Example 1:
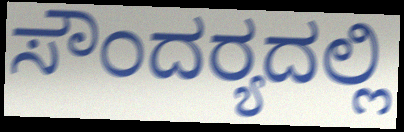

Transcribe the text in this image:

ಸೌಂದರ‍್ಯದಲ್ಲಿ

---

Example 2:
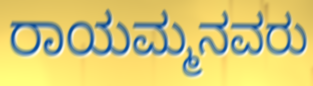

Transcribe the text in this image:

ರಾಯಮ್ಮನವರು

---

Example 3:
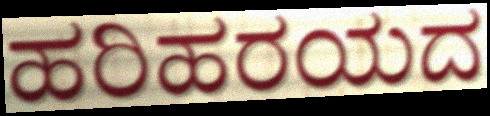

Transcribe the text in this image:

ಹರಿಹರಯದ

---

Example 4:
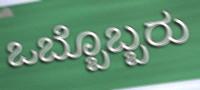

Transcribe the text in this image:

ಒಬ್ಬೊಬ್ಬರು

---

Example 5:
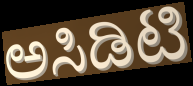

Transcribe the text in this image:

ಅಸಿಡಿಟಿ